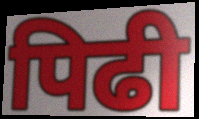
पिढी